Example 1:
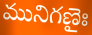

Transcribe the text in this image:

మునిగణైః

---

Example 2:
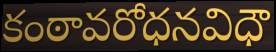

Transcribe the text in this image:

కంఠావరోధనవిధౌ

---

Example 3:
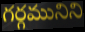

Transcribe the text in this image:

గర్గమునిని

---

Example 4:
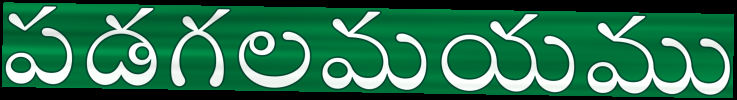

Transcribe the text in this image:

పడగలమయము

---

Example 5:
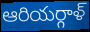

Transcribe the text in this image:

ఆరియర్గాళ్